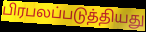
பிரபலப்படுத்தியது